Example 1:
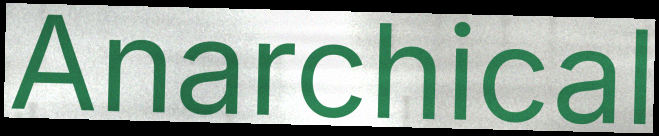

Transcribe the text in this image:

Anarchical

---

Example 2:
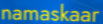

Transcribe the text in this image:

namaskaar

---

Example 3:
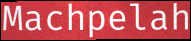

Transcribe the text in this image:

Machpelah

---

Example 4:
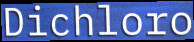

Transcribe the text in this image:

Dichloro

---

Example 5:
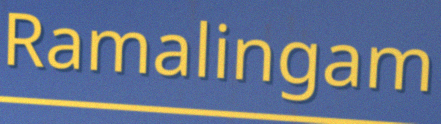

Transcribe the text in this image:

Ramalingam